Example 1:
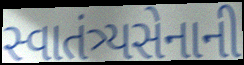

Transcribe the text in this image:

સ્વાતંત્ર્યસેનાની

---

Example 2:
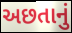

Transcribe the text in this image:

અછતાનું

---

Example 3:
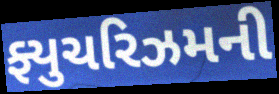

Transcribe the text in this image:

ફ્યુચરિઝમની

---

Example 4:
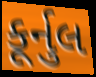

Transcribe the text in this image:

કૂર્નુલ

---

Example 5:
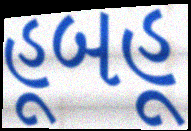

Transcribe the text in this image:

હૂબહૂ